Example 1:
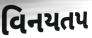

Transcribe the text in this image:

વિનયતપ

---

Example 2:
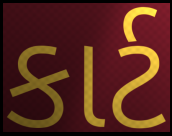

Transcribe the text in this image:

કાર્ટ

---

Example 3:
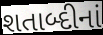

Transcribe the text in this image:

શતાબ્દીનાં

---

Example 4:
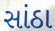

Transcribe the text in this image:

સાંઠા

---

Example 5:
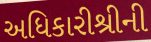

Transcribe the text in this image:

અધિકારીશ્રીની